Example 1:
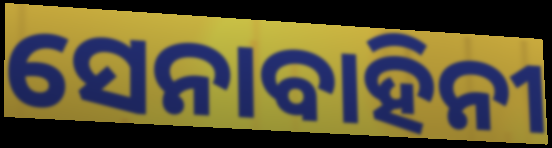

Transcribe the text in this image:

ସେନାବାହିନୀ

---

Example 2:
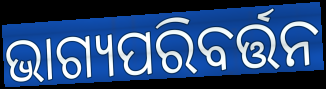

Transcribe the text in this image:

ଭାଗ୍ୟପରିବର୍ତ୍ତନ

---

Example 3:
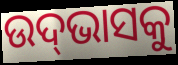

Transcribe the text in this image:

ଉଦ୍‌ଭାସକୁ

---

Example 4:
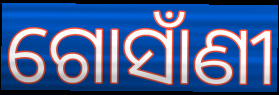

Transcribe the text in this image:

ଗୋସାଁଣୀ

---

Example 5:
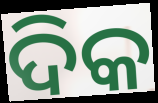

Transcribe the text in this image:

ଦିକ